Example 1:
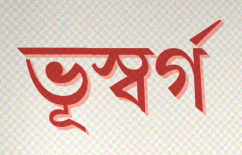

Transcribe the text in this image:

ভূস্বর্গ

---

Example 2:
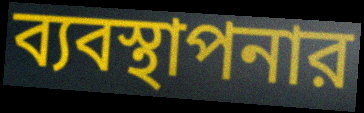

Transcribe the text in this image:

ব্যবস্থাপনার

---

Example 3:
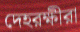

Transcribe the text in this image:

দেহরক্ষীরা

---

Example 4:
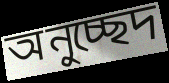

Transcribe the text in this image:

অনুচ্ছেদ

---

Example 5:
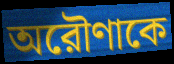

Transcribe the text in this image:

অরৌণাকে